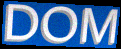
DOM